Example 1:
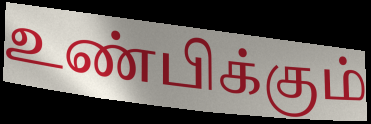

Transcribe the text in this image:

உண்பிக்கும்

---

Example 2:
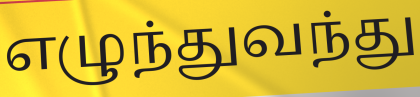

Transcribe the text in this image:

எழுந்துவந்து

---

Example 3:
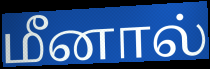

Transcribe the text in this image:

மீனால்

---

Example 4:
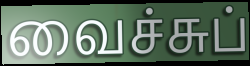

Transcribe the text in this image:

வைச்சுப்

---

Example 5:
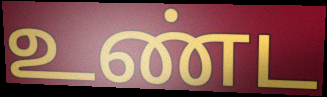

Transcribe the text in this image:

உண்ட